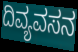
ದಿವ್ಯವಸನ